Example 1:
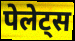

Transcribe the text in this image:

पेलेट्स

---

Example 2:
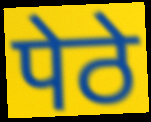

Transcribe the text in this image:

पेठे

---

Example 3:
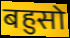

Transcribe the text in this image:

बहुसो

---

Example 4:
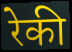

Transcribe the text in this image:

रेकी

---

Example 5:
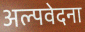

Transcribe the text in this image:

अल्पवेदना